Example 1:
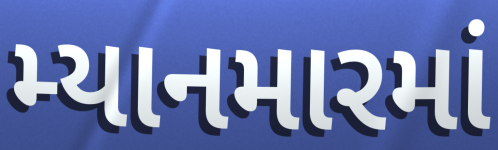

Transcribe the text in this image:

મ્યાનમારમાં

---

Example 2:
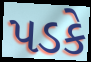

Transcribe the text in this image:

પડકે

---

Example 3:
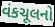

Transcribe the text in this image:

વંકચૂલનો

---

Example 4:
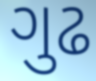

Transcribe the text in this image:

ગુઢ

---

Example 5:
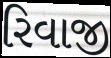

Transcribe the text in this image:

રિવાજી